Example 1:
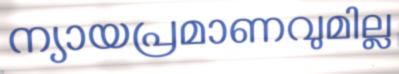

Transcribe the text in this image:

ന്യായപ്രമാണവുമില്ല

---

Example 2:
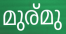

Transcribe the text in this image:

മുര്മു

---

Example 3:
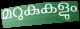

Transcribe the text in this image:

മറുകുകളും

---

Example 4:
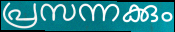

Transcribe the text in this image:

പ്രസന്നക്കും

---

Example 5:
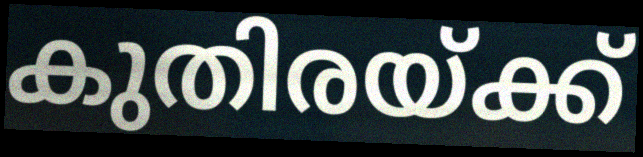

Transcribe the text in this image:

കുതിരയ്ക്ക്